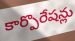
కార్పొరేషన్లు